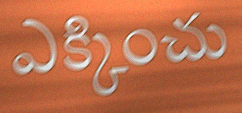
ఎక్కించు